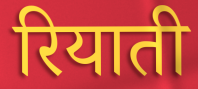
रियाती